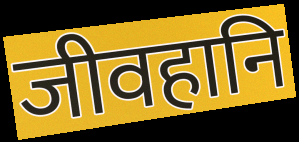
जीवहानि